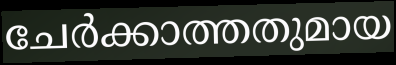
ചേർക്കാത്തതുമായ